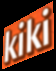
kiki